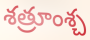
శత్రూంశ్చ